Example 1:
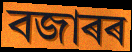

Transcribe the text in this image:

বজাৰৰ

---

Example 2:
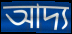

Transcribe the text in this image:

আদ্য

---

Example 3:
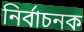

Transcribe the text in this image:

নিৰ্বাচনক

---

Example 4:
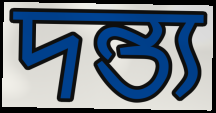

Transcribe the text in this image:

দন্ত্য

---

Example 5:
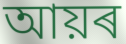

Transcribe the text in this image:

আয়ৰ